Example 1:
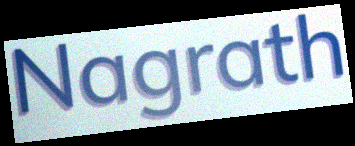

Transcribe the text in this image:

Nagrath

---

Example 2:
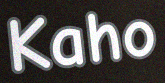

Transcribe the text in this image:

Kaho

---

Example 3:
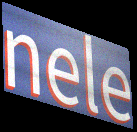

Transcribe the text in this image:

nele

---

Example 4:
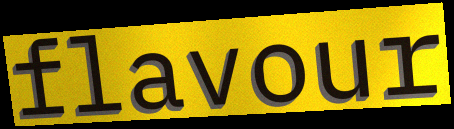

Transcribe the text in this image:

flavour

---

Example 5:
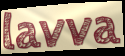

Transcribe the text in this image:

lavva